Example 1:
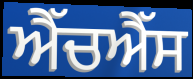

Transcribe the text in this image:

ਐੱਚਐੱਸ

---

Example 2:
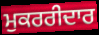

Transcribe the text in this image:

ਮੁਕਰਰੀਦਾਰ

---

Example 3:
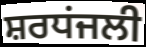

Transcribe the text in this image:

ਸ਼ਰਧਂਜਲੀ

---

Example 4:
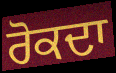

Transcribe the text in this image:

ਰੋਕਦਾ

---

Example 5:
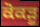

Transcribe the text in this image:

ਕੋਕੜੂ